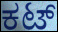
ಕಟ್